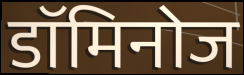
डॉमिनोज